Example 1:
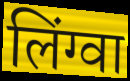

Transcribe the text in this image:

लिंग्वा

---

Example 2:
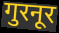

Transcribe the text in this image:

गुरनूर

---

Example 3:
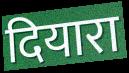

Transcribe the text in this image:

दियारा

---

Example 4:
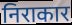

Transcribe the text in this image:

निराकार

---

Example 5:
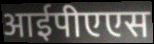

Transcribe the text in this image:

आईपीएएस